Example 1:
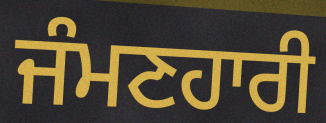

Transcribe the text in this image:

ਜੰਮਣਹਾਰੀ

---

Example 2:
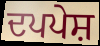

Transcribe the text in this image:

ਦਪਪੇਸ਼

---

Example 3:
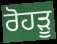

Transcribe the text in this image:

ਰੋਹੜੂ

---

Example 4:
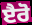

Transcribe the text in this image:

ੲੈਰੋ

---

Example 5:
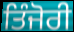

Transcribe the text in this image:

ਤਿੰਜੋਰੀ